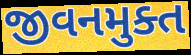
જીવનમુક્ત